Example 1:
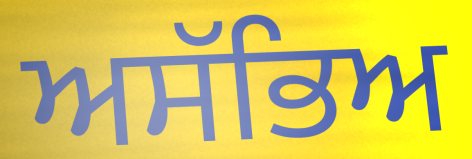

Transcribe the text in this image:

ਅਸੱਭਿਅ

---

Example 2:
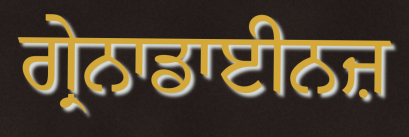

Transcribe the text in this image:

ਗ੍ਰੇਨਾਡਾਈਨਜ਼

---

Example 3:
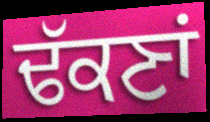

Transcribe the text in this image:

ਢੱਕਣਾਂ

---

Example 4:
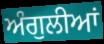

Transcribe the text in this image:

ਅੰਗੁਲੀਆਂ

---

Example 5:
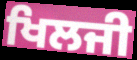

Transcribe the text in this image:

ਖਿਲਜੀ